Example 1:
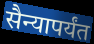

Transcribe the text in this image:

सैन्यापर्यंत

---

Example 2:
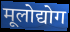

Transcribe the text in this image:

मूलोद्योग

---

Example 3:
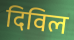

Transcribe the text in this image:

दिविल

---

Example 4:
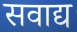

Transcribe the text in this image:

सवाद्य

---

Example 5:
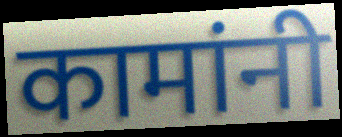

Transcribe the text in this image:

कामांनी